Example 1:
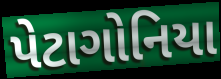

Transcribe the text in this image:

પેટાગોનિયા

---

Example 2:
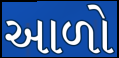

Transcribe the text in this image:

આળો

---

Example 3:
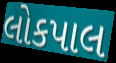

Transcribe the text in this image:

લોકપાલ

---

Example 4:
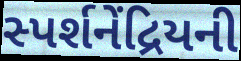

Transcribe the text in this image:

સ્પર્શનેંદ્રિયની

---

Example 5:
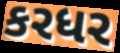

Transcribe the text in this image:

કરધર